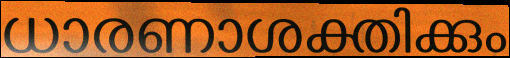
ധാരണാശക്തിക്കും